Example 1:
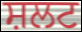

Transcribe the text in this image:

ਸ਼ਲਟ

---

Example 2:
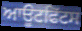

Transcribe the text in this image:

ਆਊਟਫਿੱਟਸ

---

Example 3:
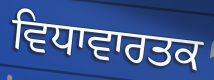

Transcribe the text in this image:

ਵਿਧਾਵਾਰਤਕ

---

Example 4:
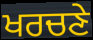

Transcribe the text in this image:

ਖਰਚਣੇ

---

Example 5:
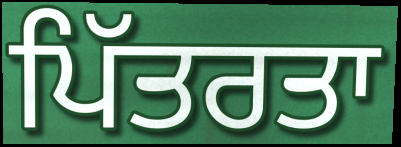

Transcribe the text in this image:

ਪਿੱਤਰਤਾ